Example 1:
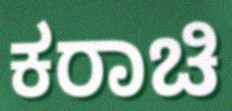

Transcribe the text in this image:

ಕರಾಚಿ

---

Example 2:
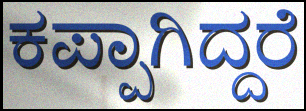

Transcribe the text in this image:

ಕಪ್ಪಾಗಿದ್ದರೆ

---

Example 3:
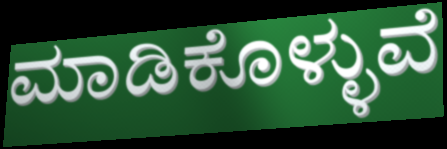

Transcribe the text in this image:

ಮಾಡಿಕೊಳ್ಳುವೆ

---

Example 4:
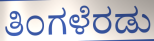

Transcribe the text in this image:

ತಿಂಗಳೆರಡು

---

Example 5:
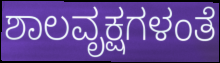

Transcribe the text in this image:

ಶಾಲವೃಕ್ಷಗಳಂತೆ